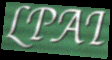
LPAI